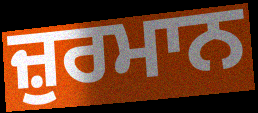
ਜ਼ੁਰਮਾਨ